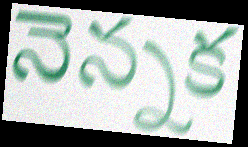
నెన్నక